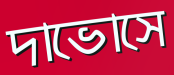
দাভোসে